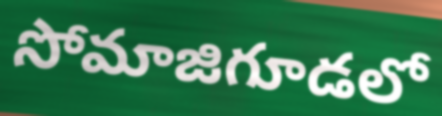
సోమాజిగూడలో